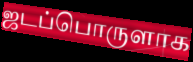
ஜடப்பொருளாக